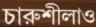
চারুশীলাও